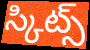
స్కిట్స్